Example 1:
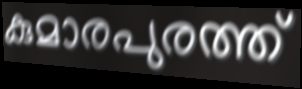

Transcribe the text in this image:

കുമാരപുരത്ത്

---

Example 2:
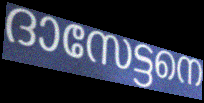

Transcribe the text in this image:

ദാസേട്ടനെ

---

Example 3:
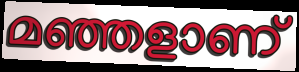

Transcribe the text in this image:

മഞ്ഞളാണ്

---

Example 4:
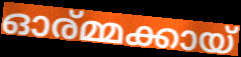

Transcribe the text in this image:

ഓര്മ്മക്കായ്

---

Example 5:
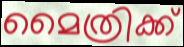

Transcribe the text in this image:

മൈത്രിക്ക്